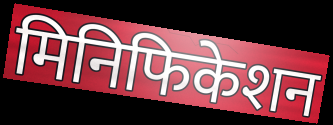
मिनिफिकेशन